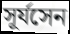
সূর্যসেন